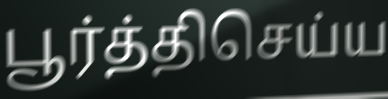
பூர்த்திசெய்ய